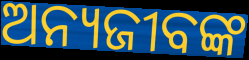
ଅନ୍ୟଜୀବଙ୍କ